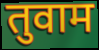
तुवाम